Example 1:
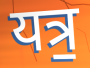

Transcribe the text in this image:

यत्र॒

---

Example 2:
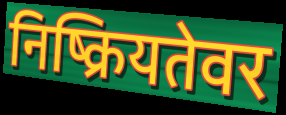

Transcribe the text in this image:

निष्क्रियतेवर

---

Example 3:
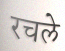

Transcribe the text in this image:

रचले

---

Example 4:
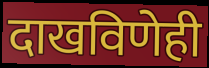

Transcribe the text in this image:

दाखविणेही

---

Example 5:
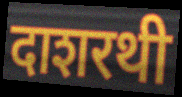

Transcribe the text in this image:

दाशरथी